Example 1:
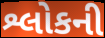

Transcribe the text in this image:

શ્લોકની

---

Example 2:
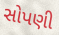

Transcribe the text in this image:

સોપણી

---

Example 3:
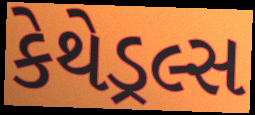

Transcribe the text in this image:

કેથેડ્રલ્સ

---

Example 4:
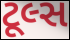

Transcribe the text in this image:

ટૂલ્સ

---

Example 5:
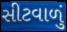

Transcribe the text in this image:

સીટવાળું